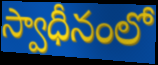
స్వాధీనంలో